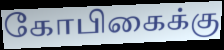
கோபிகைக்கு